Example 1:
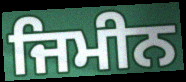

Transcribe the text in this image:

ਜਿਮੀਨ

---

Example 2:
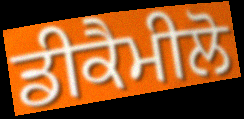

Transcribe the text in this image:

ਡੀਕੈਮੀਲੋ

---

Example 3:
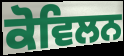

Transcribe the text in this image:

ਕੋਵਿਲਨ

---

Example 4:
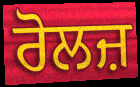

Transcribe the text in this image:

ਰੋਲਜ਼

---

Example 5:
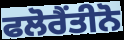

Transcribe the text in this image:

ਫਲੋਰੈਂਤੀਨੋ